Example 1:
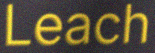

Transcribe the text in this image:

Leach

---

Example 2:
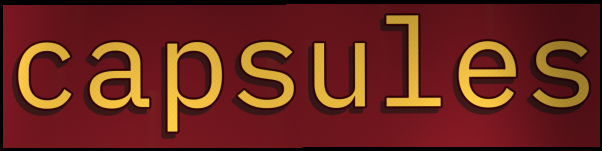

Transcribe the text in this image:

capsules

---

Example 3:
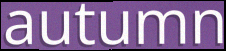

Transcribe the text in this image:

autumn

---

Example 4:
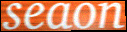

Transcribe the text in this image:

seaon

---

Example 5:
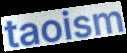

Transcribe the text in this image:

taoism